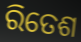
ରିତେଶ